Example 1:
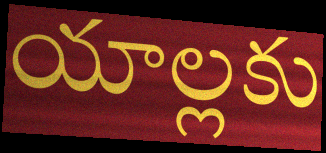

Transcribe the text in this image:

యాల్లకు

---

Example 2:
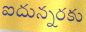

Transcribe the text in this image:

ఐదున్నరకు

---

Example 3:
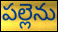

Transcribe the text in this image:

పల్లెను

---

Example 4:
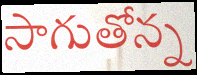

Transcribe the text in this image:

సాగుతోన్న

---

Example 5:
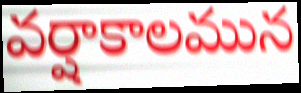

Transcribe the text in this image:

వర్షాకాలమున